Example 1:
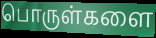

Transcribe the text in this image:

பொருள்களை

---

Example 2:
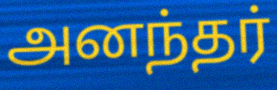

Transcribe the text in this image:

அனந்தர்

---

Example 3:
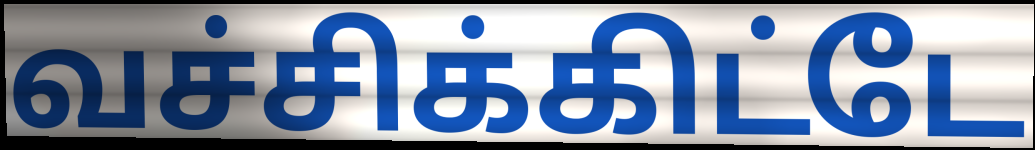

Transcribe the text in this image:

வச்சிக்கிட்டே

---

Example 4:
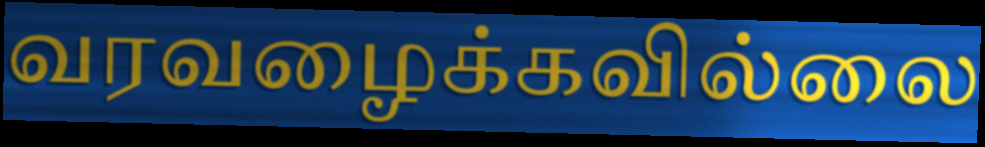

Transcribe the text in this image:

வரவழைக்கவில்லை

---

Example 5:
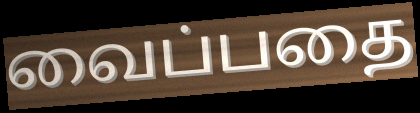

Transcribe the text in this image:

வைப்பதை